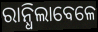
ରାନ୍ଧିଲାବେଳେ